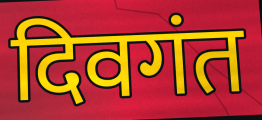
दिवगंत